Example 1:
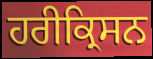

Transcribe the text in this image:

ਹਰੀਕ੍ਰਿਸਨ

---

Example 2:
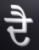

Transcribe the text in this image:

ਦੈ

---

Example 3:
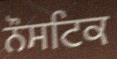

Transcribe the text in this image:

ਨੌਸਟਿਕ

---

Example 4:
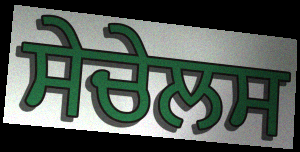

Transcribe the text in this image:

ਸੇਚੇਲਸ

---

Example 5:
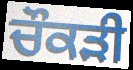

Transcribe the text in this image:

ਚੌਕੜੀ